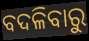
ବଦଳିବାରୁ